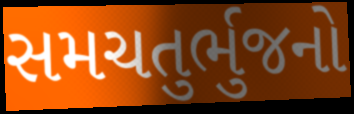
સમચતુર્ભુજનો